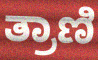
ತ್ರಾಣಿ